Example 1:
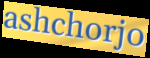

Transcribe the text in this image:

ashchorjo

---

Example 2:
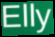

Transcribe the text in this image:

Elly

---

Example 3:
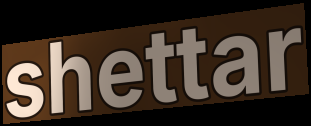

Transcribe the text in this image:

shettar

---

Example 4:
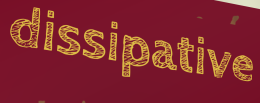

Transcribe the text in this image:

dissipative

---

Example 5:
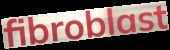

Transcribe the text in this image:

fibroblast